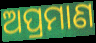
ଅପ୍ରମାଣ